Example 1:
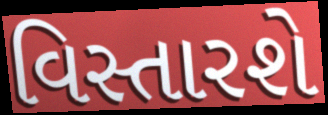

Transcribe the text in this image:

વિસ્તારશે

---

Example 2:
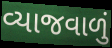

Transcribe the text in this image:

વ્યાજવાળું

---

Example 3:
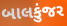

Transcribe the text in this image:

બાલકુંજર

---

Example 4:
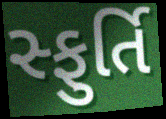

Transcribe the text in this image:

સ્ફુર્તિ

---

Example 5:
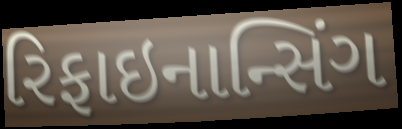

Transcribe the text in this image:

રિફાઇનાન્સિંગ